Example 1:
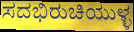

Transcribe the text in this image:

ಸದಭಿರುಚಿಯುಳ್ಳ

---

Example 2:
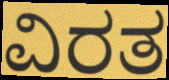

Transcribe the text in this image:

ವಿರತ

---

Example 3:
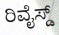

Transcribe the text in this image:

ರಿವೈಸ್ಡ್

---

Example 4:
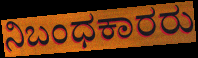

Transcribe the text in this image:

ನಿಬಂಧಕಾರರು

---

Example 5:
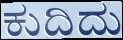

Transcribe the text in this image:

ಕುದಿದು